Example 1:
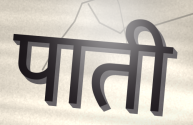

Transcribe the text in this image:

पाती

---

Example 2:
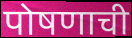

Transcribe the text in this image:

पोषणाची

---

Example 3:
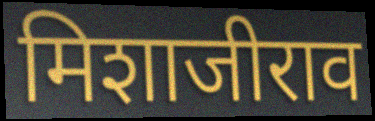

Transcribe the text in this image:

मिशाजीराव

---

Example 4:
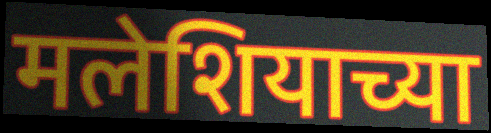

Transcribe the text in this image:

मलेशियाच्या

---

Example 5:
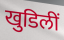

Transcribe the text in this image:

खुडिलीं